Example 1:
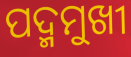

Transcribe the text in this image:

ପଦ୍ମମୁଖୀ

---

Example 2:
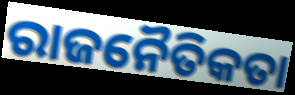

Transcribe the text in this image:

ରାଜନୈତିକତା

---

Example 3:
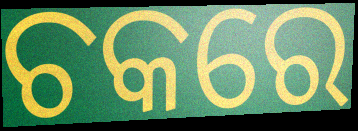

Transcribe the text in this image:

ଚକରେ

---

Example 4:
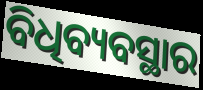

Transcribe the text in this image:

ବିଧିବ୍ୟବସ୍ଥାର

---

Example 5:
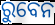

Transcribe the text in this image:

ରୁବେନ